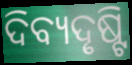
ଦିବ୍ୟଦୃଷ୍ଟି